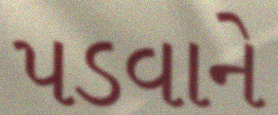
પડવાને